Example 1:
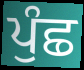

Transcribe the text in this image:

ਪੁੰਛ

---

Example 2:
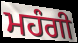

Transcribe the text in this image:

ਮਹੰਗੀ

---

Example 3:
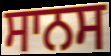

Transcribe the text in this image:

ਸਾਨਸ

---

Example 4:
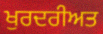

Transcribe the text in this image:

ਖੁਰਦਰੀਅਤ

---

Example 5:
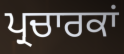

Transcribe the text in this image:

ਪ੍ਰਚਾਰਕਾਂ